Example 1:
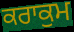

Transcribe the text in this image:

ਕਰਾਕੁਮ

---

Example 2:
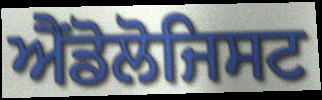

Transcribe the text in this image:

ਐਂਡੋਲੋਜਿਸਟ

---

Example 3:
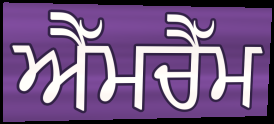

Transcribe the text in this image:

ਐੱਮਚੈੱਮ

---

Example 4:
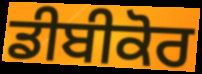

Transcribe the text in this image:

ਡੀਬੀਕੋਰ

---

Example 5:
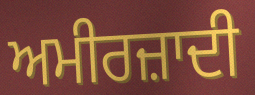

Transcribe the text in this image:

ਅਮੀਰਜ਼ਾਦੀ